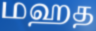
மஹத